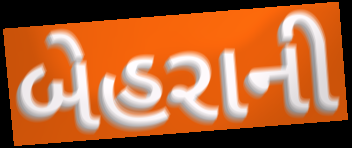
બેહરાની